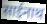
साईनाथ